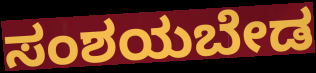
ಸಂಶಯಬೇಡ